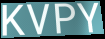
KVPY